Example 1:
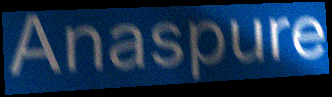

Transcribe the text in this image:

Anaspure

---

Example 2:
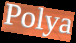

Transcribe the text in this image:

Polya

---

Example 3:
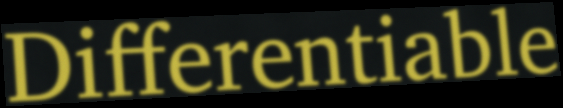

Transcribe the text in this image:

Differentiable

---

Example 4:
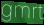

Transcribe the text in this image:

gmrt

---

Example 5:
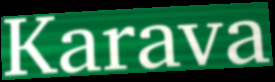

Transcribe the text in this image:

Karava